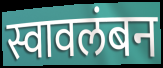
स्वावलंबन